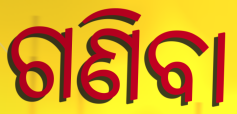
ଗଣିବା